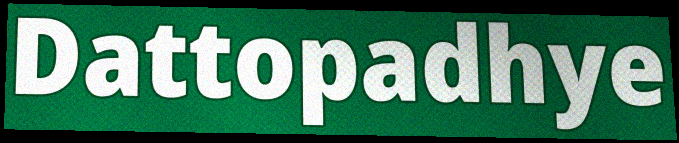
Dattopadhye